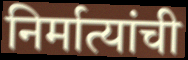
निर्मात्यांची